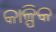
କାଳ୍ପିକ